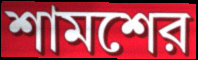
শামশের